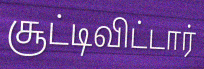
சூட்டிவிட்டார்